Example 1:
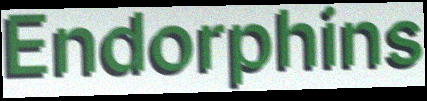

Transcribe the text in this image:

Endorphins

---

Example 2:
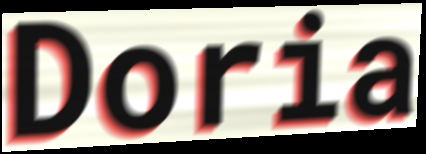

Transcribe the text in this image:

Doria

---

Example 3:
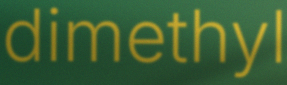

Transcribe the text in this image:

dimethyl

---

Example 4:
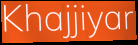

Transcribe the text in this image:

Khajjiyar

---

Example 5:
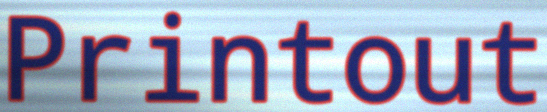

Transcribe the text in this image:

Printout